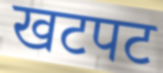
खटपट